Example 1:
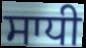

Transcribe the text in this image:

ਸਾਧੀ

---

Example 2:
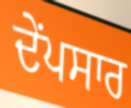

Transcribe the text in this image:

ਦੇਂਪਸਾਰ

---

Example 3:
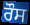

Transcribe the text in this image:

ਰੌਸ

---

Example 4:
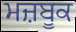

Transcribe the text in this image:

ਮਜ਼ਬੂਕ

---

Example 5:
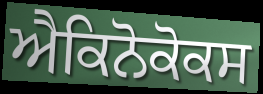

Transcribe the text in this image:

ਐਕਿਨੋਕੋਕਸ